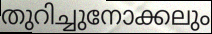
തുറിച്ചുനോക്കലും